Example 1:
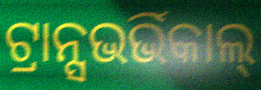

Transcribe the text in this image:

ଟ୍ରାନ୍ସଭର୍ଭିକାଲ୍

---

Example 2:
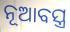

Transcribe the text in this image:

ନୂଆବସ୍ତ୍ର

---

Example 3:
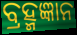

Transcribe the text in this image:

ବ୍ରହ୍ମଜ୍ଞାନ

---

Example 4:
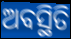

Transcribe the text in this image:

ଅବସ୍ଥିତି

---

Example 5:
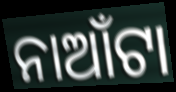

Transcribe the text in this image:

ନାଆଁଟା